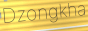
Dzongkha